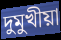
দুমুখীয়া